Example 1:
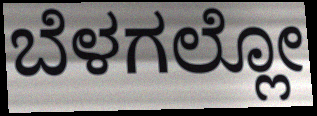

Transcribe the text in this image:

ಬೆಳಗಲ್ಲೋ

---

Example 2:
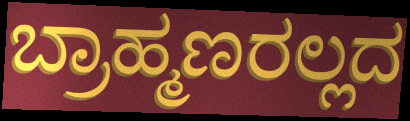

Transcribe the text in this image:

ಬ್ರಾಹ್ಮಣರಲ್ಲದ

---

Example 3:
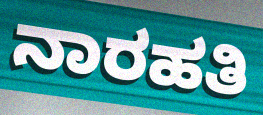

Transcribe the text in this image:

ನಾರಹತಿ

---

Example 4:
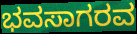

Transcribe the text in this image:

ಭವಸಾಗರವ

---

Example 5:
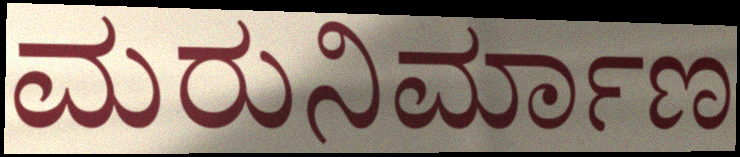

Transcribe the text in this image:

ಮರುನಿರ್ಮಾಣ